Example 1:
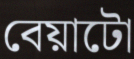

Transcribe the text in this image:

বেয়াটো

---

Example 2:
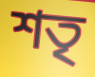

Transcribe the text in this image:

শতৃ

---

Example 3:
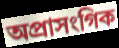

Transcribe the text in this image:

অপ্ৰাসংগিক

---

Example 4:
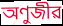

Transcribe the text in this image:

অণুজীৱ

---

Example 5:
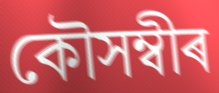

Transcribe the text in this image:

কৌসম্বীৰ